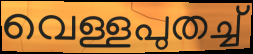
വെള്ളപുതച്ച്